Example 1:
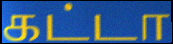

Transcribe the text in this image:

கட்டா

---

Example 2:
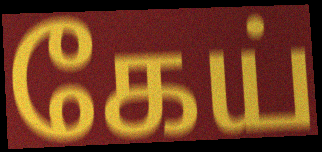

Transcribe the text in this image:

கேய்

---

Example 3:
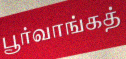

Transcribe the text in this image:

பூர்வாங்கத்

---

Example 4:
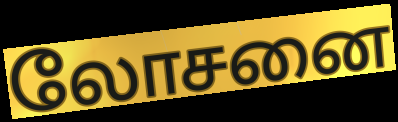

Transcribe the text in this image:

லோசனை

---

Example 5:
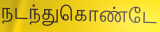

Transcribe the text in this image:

நடந்துகொண்டே